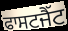
ਫਾਸਟਜੈੱਟ